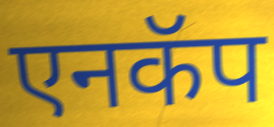
एनकॅप